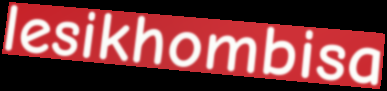
lesikhombisa